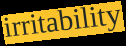
irritability